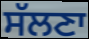
ਸੱਲਣਾ